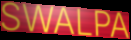
SWALPA